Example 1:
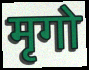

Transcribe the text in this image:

मृगो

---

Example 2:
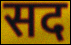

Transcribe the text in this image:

सद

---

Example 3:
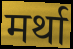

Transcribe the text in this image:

मर्था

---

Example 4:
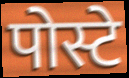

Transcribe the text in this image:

पोस्टे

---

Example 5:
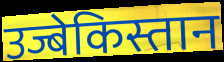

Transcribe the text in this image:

उज्बेकिस्तान